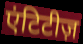
एंटिटीज़